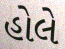
હોલે